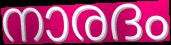
നാരദം